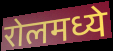
रोलमध्ये